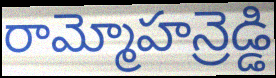
రామ్మోహన్రెడ్డి